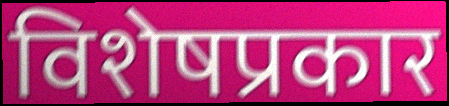
विशेषप्रकार